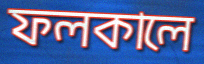
ফলকালে